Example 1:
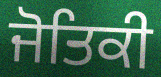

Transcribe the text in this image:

ਜੋਤਿਕੀ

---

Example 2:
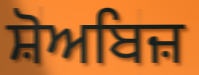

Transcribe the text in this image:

ਸ਼ੋਅਬਿਜ਼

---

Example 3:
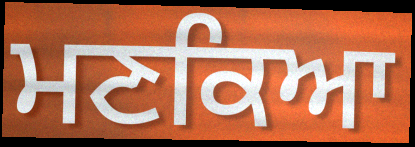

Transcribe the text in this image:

ਮਣਕਿਆ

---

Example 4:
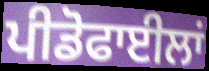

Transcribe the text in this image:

ਪੀਡੋਫਾਈਲਾਂ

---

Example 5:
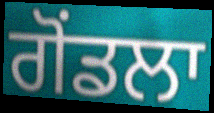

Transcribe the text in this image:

ਗੋਂਡਲਾ